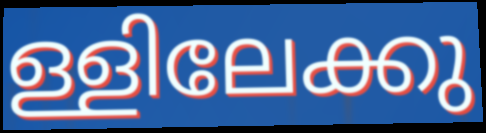
ള്ളിലേക്കു